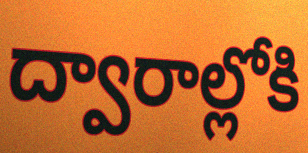
ద్వారాల్లోకి